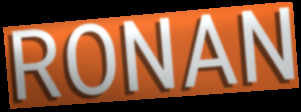
RONAN